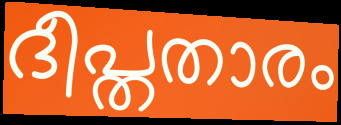
ദീപ്തതാരം